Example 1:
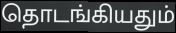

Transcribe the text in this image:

தொடங்கியதும்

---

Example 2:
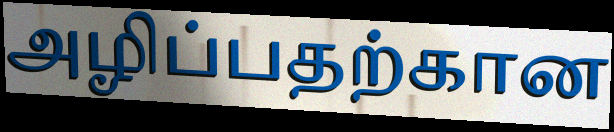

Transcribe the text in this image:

அழிப்பதற்கான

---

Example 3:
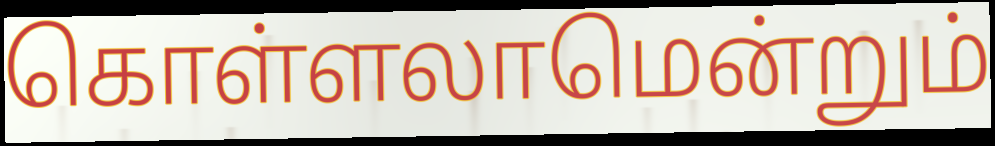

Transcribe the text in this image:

கொள்ளலாமென்றும்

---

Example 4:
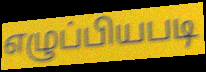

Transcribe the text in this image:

எழுப்பியபடி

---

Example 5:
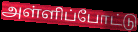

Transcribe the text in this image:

அள்ளிப்போட்டு